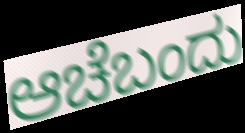
ಆಚೆಬಂದು